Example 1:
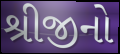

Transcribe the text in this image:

શ્રીજીનો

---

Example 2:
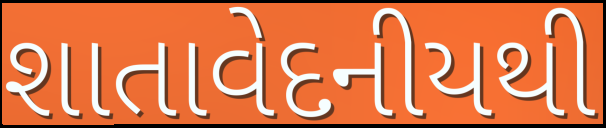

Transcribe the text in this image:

શાતાવેદનીયથી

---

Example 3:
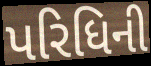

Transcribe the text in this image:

પરિધિની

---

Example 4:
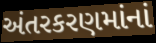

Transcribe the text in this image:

અંતરકરણમાંનાં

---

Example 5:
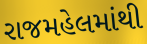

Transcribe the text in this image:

રાજમહેલમાંથી